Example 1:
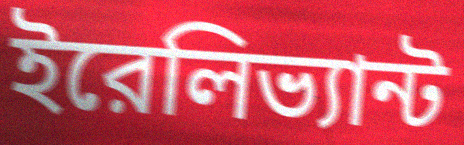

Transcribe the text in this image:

ইরেলিভ্যান্ট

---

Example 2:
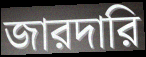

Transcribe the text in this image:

জারদারি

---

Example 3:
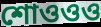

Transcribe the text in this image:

শোওওও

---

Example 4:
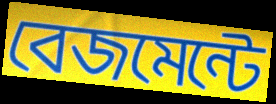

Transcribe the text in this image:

বেজমেন্টে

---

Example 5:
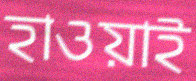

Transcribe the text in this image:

হাওয়াই